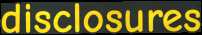
disclosures